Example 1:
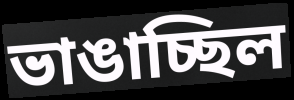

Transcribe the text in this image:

ভাঙাচ্ছিল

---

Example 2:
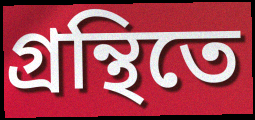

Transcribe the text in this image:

গ্রন্থিতে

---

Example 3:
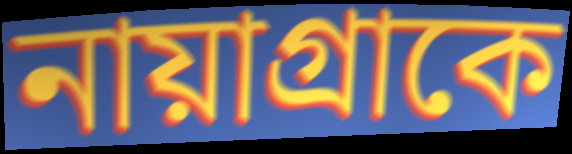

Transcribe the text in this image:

নায়াগ্রাকে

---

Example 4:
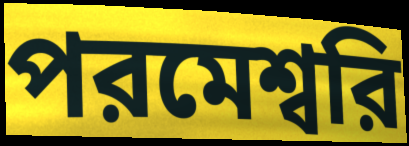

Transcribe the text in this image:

পরমেশ্বরি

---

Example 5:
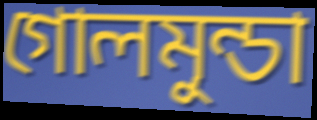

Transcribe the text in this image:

গোলমুন্ডা